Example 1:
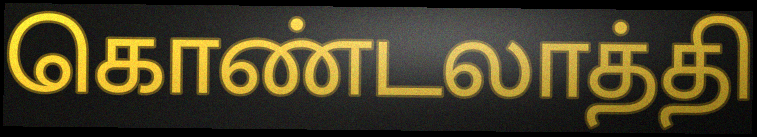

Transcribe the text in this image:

கொண்டலாத்தி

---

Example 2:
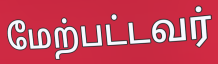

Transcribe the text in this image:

மேற்பட்டவர்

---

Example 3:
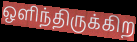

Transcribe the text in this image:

ஒளிந்திருக்கிற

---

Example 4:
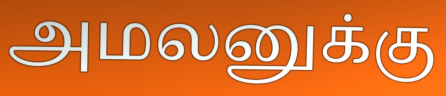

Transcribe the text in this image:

அமலனுக்கு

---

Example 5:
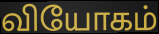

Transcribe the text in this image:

வியோகம்